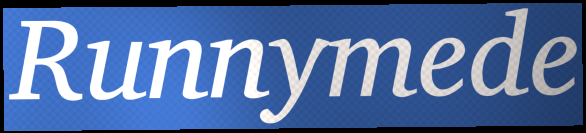
Runnymede